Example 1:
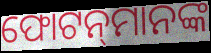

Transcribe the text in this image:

ଫୋଟନ୍‍ମାନଙ୍କ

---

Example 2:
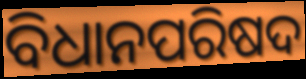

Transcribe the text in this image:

ବିଧାନପରିଷଦ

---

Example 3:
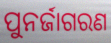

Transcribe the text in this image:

ପୁନର୍ଜାଗରଣ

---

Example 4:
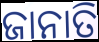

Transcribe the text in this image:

ଜାନାତି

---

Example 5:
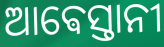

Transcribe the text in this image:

ଆଵେସ୍ତାନୀ